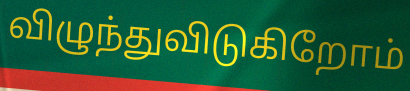
விழுந்துவிடுகிறோம்